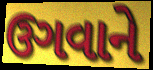
ઉગવાને